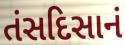
તંસદિસાનં